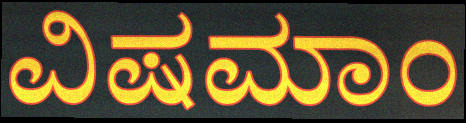
ವಿಷಮಾಂ